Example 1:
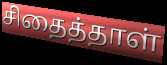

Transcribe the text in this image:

சிதைத்தாள்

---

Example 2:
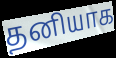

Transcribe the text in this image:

தனியாக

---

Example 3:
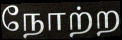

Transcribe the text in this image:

நோற்ற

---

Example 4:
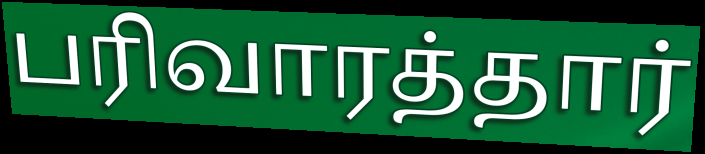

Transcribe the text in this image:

பரிவாரத்தார்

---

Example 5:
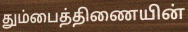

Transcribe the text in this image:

தும்பைத்திணையின்